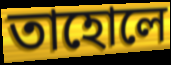
তাহোলে